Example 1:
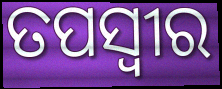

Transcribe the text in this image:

ତପସ୍ଵୀର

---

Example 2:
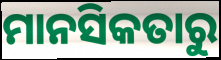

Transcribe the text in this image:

ମାନସିକତାରୁ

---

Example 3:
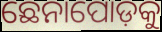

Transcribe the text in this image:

ଛେନାପୋଡ଼କୁ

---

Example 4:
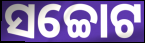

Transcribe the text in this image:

ସଚ୍ଚୋଟ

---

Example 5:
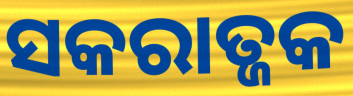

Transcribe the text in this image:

ସକରାତ୍ଜକ